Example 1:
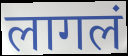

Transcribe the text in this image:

लागलं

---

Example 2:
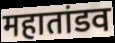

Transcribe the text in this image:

महातांडव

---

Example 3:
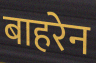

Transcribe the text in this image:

बाहरेन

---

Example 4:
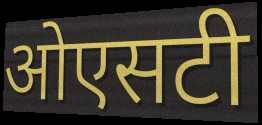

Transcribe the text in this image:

ओएसटी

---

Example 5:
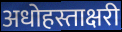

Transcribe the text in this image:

अधोहस्ताक्षरी